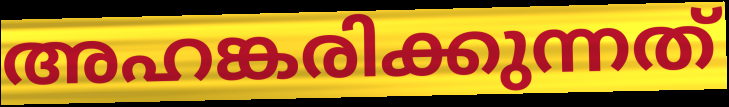
അഹങ്കരിക്കുന്നത്